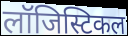
लॉजिस्टिकल